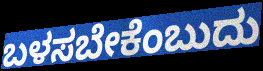
ಬಳಸಬೇಕೆಂಬುದು